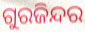
ଗୁରଜିନ୍ଦର